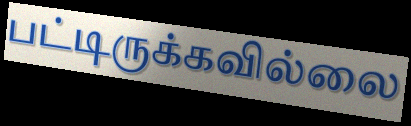
பட்டிருக்கவில்லை